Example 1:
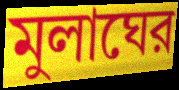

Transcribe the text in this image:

মুলাঘের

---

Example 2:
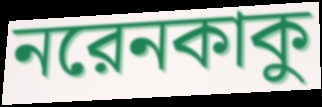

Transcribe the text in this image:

নরেনকাকু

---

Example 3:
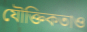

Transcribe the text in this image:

যৌক্তিকতাও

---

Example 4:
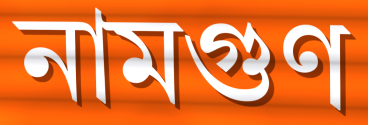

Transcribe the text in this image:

নামগুণ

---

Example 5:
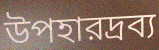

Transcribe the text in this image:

উপহারদ্রব্য